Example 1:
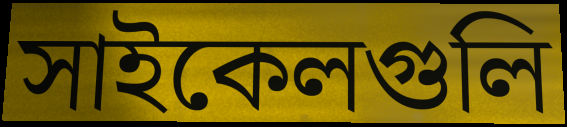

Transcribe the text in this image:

সাইকেলগুলি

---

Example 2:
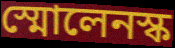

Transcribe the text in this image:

স্মোলেনস্ক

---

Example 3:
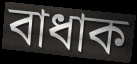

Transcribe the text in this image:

বাধাক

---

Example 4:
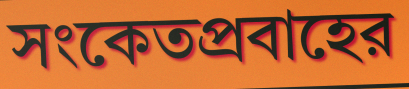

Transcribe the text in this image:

সংকেতপ্রবাহের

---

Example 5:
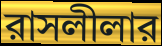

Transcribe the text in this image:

রাসলীলার